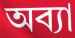
অব্যা